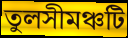
তুলসীমঞ্চটি